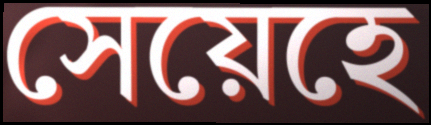
সেয়েহে